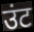
उंट